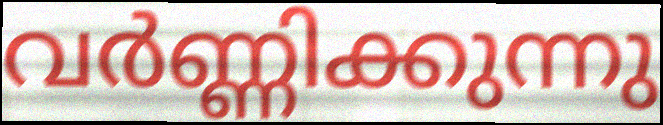
വർണ്ണിക്കുന്നു